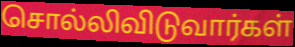
சொல்லிவிடுவார்கள்